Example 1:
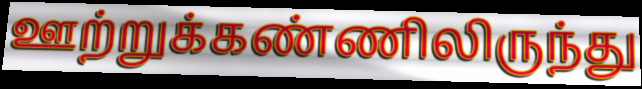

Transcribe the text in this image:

ஊற்றுக்கண்ணிலிருந்து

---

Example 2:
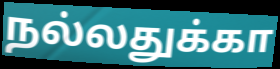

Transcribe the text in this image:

நல்லதுக்கா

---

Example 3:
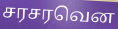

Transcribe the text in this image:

சரசரவென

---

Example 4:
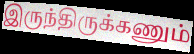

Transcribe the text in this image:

இருந்திருக்கணும்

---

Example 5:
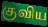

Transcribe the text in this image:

குவிய